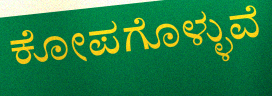
ಕೋಪಗೊಳ್ಳುವೆ